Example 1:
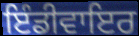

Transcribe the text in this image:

ਇੰਡੀਵਾਇਰ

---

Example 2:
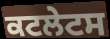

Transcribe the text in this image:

ਕਟਲੇਟਸ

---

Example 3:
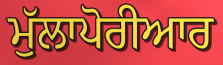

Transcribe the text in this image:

ਮੁੱਲਾਪੋਰੀਆਰ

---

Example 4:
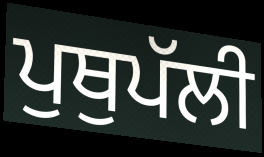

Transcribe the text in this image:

ਪੁਥੁਪੱਲੀ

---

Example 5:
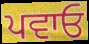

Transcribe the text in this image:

ਪਵਾਓ